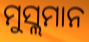
ମୁସ୍ଲମାନ